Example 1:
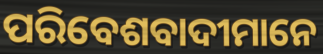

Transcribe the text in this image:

ପରିବେଶବାଦୀମାନେ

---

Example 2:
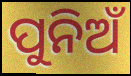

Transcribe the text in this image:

ପୁନିଅଁ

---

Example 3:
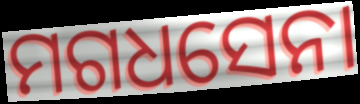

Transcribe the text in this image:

ମଗଧସେନା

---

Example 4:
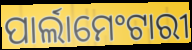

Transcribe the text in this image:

ପାର୍ଲାମେଂଟାରୀ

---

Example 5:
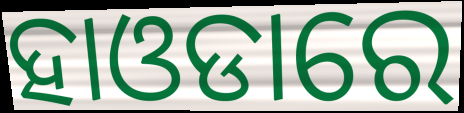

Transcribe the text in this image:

ହାଓଡାରେ